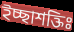
ইচ্ছাশক্তিঃ